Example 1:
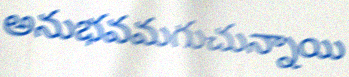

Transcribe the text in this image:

అనుభవమగుచున్నాయి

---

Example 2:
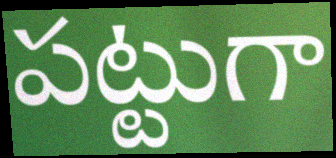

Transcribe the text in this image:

పట్టుగా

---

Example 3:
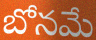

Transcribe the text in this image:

బోనమే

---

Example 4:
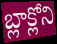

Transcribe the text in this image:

బ్లాక్లోని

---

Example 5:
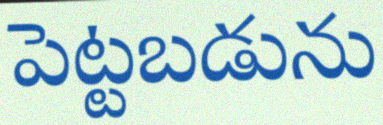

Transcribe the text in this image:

పెట్టబడును